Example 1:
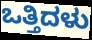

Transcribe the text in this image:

ಒತ್ತಿದಳು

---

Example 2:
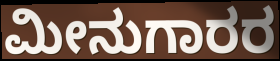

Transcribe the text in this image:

ಮೀನುಗಾರರ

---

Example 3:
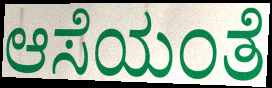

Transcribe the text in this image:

ಆಸೆಯಂತೆ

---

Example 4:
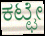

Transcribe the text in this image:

ಕಟ್ಟೇ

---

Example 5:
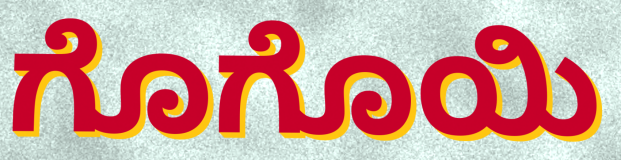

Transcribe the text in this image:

ಗೊಗೊಯಿ